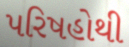
પરિષહોથી